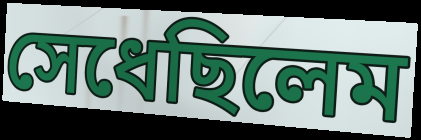
সেধেছিলেম